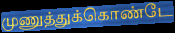
முணுத்துக்கொண்டே